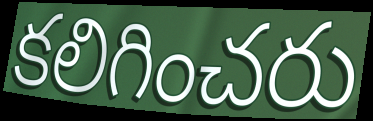
కలిగించరు